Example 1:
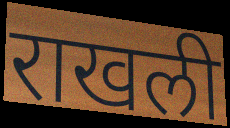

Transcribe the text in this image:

राखली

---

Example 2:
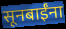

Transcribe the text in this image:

सूनबाईंना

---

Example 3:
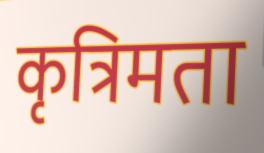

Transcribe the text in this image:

कृत्रिमता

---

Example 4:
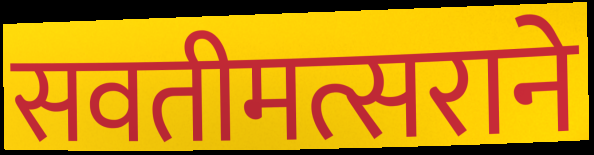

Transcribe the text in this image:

सवतीमत्सराने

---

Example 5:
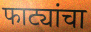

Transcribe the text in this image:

फाट्यांचा